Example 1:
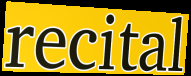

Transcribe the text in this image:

recital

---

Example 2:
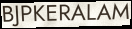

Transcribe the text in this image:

BJPKERALAM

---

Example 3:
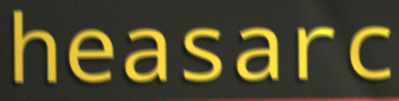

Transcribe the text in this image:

heasarc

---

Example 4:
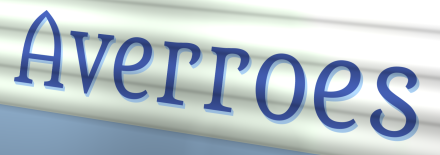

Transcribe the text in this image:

Averroes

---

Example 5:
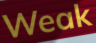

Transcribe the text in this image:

Weak